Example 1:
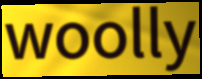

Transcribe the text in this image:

woolly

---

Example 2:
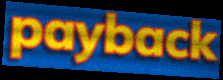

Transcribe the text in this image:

payback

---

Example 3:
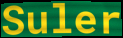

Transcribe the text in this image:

Suler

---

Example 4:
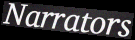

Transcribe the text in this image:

Narrators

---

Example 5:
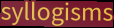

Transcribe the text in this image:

syllogisms